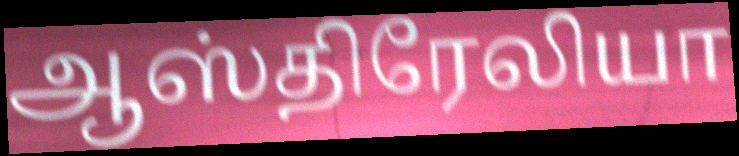
ஆஸ்திரேலியா